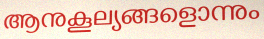
ആനുകൂല്യങ്ങളൊന്നും